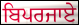
ਬਿਪਰਜਾਏ